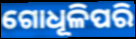
ଗୋଧୂଳିପରି